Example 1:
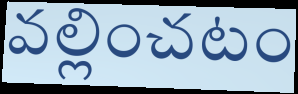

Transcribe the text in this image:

వల్లించటం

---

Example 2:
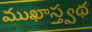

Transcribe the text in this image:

ముఖాస్త్వథ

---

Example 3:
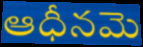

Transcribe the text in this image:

ఆధీనమె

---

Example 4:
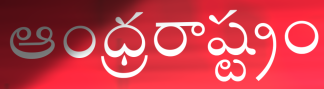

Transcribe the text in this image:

ఆంధ్రరాష్ట్రం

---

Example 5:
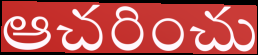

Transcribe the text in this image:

ఆచరించు